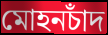
মোহনচাঁদ